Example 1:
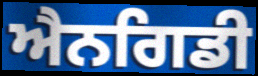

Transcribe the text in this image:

ਐਨਗਿਡੀ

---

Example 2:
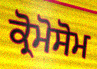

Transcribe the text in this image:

ਕ੍ਰੋਮੋਸੋਮ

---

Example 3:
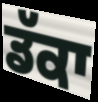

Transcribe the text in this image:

ਡੱਕਾ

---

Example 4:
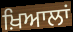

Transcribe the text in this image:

ਖ਼ਿਆਲਾਂ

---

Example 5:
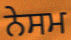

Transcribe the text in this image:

ਨੇਸਮ